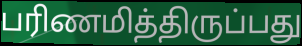
பரிணமித்திருப்பது